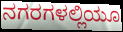
ನಗರಗಳಲ್ಲಿಯೂ